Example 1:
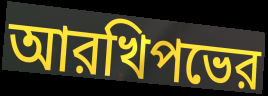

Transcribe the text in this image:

আরখিপভের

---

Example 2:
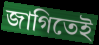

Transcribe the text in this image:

জাগিতেই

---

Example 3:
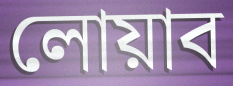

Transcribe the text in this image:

লোয়াব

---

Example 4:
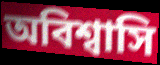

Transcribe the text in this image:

অবিশ্বাসি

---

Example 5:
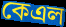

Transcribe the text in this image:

কেএল